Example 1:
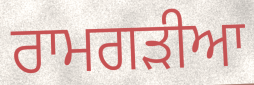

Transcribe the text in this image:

ਰਾਮਗੜੀਆ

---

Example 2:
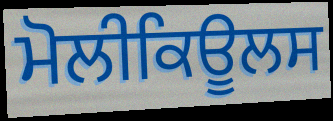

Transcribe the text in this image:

ਮੋਲੀਕਿਊਲਸ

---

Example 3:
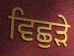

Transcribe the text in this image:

ਵਿਛੁੜੇ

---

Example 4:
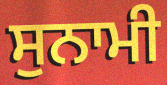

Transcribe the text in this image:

ਸੁਨਾਮੀ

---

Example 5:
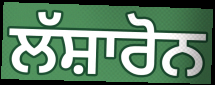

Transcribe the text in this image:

ਲੱਸ਼ਾਰੋਨ